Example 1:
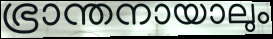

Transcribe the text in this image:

ഭ്രാന്തനായാലും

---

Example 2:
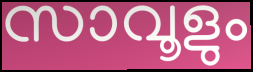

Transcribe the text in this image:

സാവൂളും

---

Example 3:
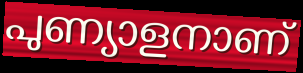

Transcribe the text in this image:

പുണ്യാളനാണ്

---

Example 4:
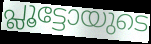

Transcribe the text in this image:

പ്ലൂട്ടോയുടെ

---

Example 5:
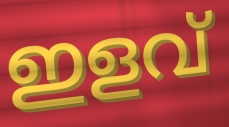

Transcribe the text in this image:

ഇളവ്